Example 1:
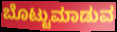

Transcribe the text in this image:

ಬೊಟ್ಟುಮಾಡುವ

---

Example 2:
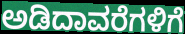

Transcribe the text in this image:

ಅಡಿದಾವರೆಗಳಿಗೆ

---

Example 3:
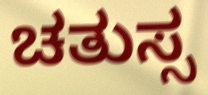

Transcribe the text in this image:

ಚತುಸ್ಸ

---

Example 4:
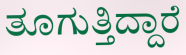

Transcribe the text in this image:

ತೂಗುತ್ತಿದ್ದಾರೆ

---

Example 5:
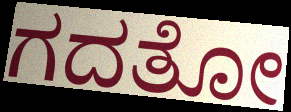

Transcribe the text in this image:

ಗದತೋ